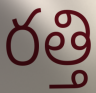
రత్తి